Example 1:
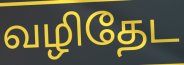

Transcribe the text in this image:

வழிதேட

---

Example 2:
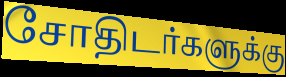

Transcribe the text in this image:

சோதிடர்களுக்கு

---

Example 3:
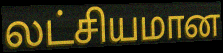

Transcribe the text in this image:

லட்சியமான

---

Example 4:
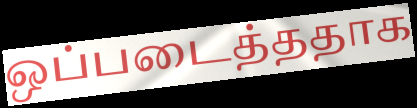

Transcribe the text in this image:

ஒப்படைத்ததாக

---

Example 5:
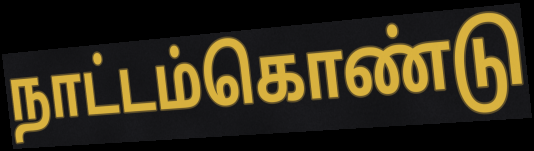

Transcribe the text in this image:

நாட்டம்கொண்டு